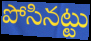
పోసినట్టు